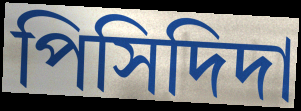
পিসিদিদা